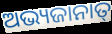
ଅଭ୍ୟଜାନାତ୍